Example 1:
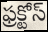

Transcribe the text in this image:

ఫ్రక్టోస్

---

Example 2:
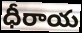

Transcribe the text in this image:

ధీరాయ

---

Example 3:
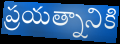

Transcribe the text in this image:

ప్రయత్నానికి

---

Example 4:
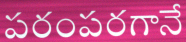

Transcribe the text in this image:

పరంపరగానే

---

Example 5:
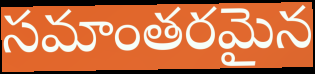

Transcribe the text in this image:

సమాంతరమైన